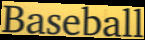
Baseball